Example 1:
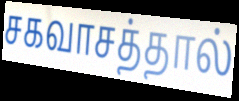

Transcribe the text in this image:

சகவாசத்தால்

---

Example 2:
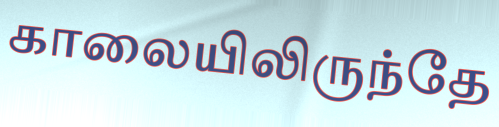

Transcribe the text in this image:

காலையிலிருந்தே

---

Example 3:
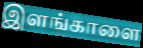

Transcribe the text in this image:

இளங்காளை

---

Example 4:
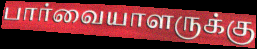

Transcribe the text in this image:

பார்வையாளருக்கு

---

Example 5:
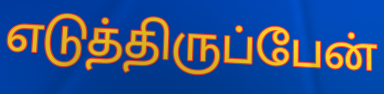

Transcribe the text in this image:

எடுத்திருப்பேன்